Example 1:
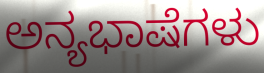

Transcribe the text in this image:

ಅನ್ಯಭಾಷೆಗಳು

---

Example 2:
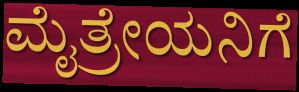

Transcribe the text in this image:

ಮೈತ್ರೇಯನಿಗೆ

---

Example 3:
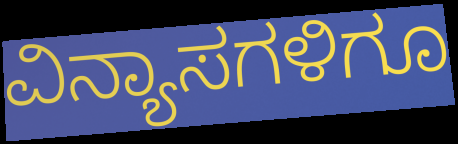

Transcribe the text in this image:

ವಿನ್ಯಾಸಗಳಿಗೂ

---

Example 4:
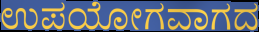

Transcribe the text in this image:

ಉಪಯೋಗವಾಗದ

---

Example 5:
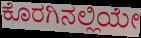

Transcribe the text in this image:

ಕೊರಗಿನಲ್ಲಿಯೇ